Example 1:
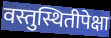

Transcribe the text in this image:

वस्तुस्थितीपेक्षा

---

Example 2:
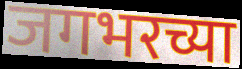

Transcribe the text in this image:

जगभरच्या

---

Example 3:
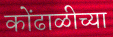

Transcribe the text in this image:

कोंढाळीच्या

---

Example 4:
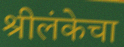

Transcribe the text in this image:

श्रीलंकेचा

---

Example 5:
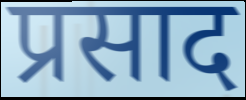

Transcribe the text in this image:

प्रसाद